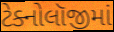
ટેક્નોલૉજીમાં